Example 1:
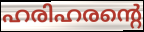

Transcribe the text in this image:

ഹരിഹരന്റെ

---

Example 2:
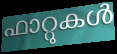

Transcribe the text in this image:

ഫാറ്റുകൾ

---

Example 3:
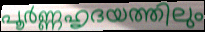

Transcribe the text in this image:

പൂർണ്ണഹൃദയത്തിലും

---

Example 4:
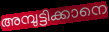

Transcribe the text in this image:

അമ്പുട്ടിക്കാനെ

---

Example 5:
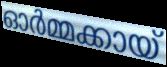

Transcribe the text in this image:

ഓർമ്മക്കായ്